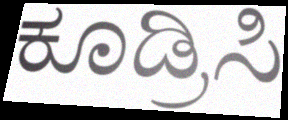
ಕೂಡ್ರಿಸಿ